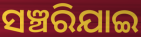
ସଞ୍ଚରିଯାଇ